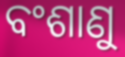
ବଂଶାଣୁ